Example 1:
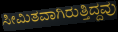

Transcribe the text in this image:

ಸೀಮಿತವಾಗಿರುತ್ತಿದ್ದವು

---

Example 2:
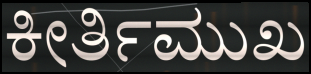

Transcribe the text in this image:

ಕೀರ್ತಿಮುಖ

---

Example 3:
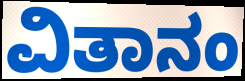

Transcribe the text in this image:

ವಿತಾನಂ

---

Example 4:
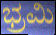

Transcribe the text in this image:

ಭ್ರಮಿ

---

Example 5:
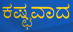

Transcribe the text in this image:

ಕಷ್ಟವಾದ